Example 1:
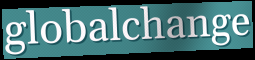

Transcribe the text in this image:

globalchange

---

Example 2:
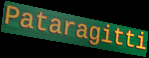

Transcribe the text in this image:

Pataragitti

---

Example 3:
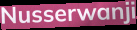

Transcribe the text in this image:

Nusserwanji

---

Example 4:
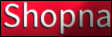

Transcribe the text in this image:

Shopna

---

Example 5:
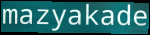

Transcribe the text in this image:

mazyakade